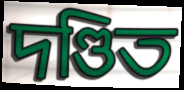
দণ্ডিত